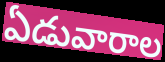
ఏడువారాల